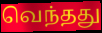
வெந்தது